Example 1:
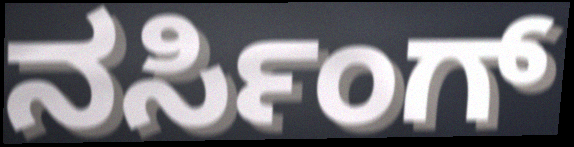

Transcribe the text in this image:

ನರ್ಸಿಂಗ್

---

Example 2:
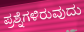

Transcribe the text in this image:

ಪ್ರಶ್ನೆಗಳಿರುವುದು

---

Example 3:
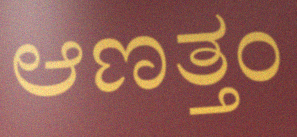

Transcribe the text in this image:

ಆಣತ್ತಂ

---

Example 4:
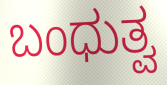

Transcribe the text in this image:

ಬಂಧುತ್ವ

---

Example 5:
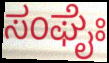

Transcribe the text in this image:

ಸಂಘೈಃ